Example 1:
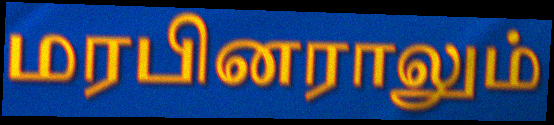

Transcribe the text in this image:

மரபினராலும்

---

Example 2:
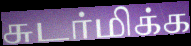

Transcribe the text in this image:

சுடர்மிக்க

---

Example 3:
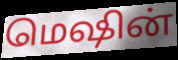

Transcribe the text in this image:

மெஷின்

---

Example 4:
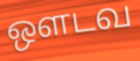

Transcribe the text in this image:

ஔடவ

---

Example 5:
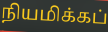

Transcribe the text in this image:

நியமிக்கப்